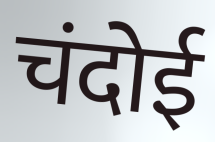
चंदोई